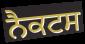
ਨੈਕਟਸ